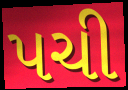
પચી